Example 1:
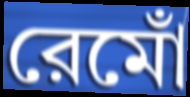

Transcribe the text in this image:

রেমোঁ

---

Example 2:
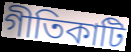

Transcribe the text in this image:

গীতিকাটি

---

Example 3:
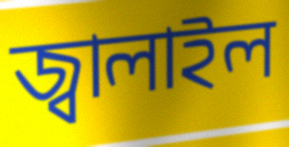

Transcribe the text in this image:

জ্বালাইল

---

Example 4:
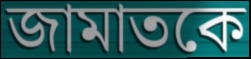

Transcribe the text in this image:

জামাতকে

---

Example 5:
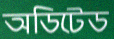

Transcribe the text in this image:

অডিটেড